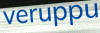
veruppu